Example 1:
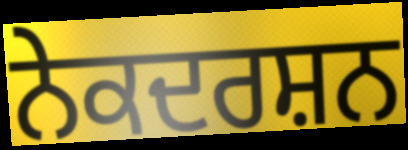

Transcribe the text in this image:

ਨੇਕਦਰਸ਼ਨ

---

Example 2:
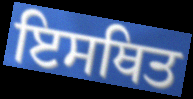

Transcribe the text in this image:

ਇਸਥਿਤ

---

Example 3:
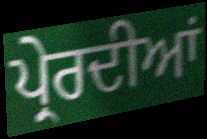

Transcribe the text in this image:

ਪ੍ਰੇਰਦੀਆਂ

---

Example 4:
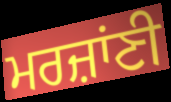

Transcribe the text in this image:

ਮਰਜ਼ਾਂਣੀ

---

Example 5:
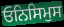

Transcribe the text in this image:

ਓਨਿਸਿਮੁਸ